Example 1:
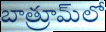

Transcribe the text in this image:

బాత్రూమ్‌లో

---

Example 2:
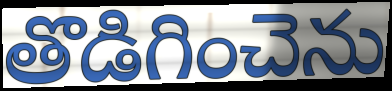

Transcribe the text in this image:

తొడిగించెను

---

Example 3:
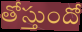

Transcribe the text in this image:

తోస్తుందో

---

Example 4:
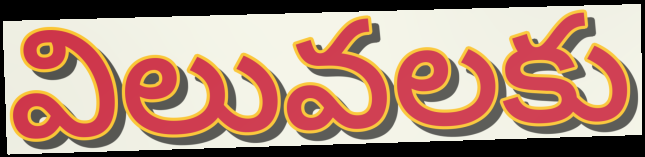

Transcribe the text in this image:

విలువలకు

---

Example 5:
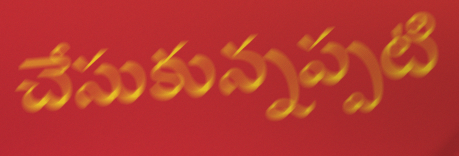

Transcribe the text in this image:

చేసుకున్నప్పటి